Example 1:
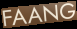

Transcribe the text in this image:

FAANG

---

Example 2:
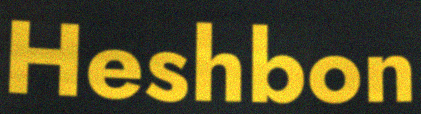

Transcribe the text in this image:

Heshbon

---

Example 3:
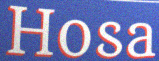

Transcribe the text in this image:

Hosa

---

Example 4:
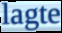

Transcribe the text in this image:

lagte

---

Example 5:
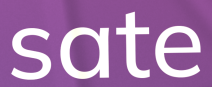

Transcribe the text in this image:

sate